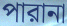
পারানা